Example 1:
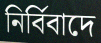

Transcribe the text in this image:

নিৰ্বিবাদে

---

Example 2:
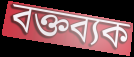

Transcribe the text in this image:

বক্তব্যক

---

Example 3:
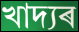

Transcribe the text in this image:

খাদ্যৰ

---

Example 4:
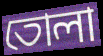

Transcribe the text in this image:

তোলা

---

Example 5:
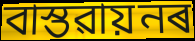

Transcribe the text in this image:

বাস্তৱায়নৰ